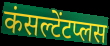
कंसल्टेंटप्लस